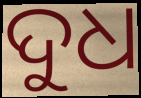
ଦୁଧ